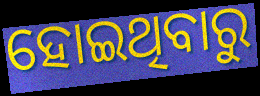
ହୋଇଥିବାରୁ